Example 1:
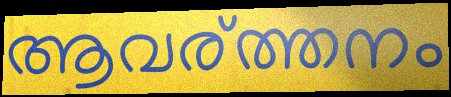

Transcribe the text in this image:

ആവര്ത്തനം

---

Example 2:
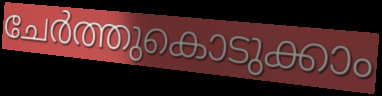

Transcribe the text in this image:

ചേർത്തുകൊടുക്കാം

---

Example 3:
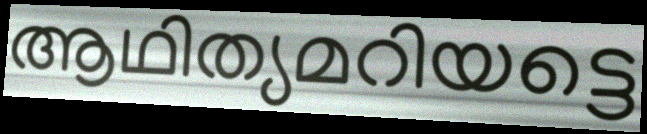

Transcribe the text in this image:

ആഥിത്യമറിയട്ടെ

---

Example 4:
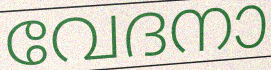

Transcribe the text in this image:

വേദനാ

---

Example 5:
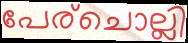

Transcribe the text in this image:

പേര്ചൊല്ലി